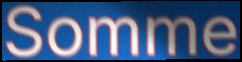
Somme